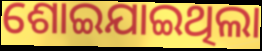
ଶୋଇଯାଇଥିଲା